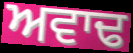
ਅਵਾਢ